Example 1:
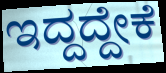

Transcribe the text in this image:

ಇದ್ದದ್ದೇಕೆ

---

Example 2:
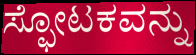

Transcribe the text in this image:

ಸ್ಫೋಟಕವನ್ನು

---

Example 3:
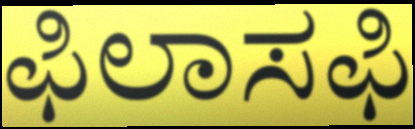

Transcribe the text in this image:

ಫಿಲಾಸಫಿ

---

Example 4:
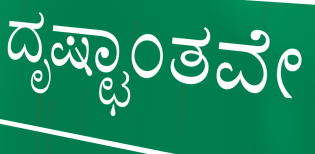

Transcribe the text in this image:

ದೃಷ್ಟಾಂತವೇ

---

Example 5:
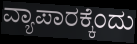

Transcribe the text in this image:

ವ್ಯಾಪಾರಕ್ಕೆಂದು